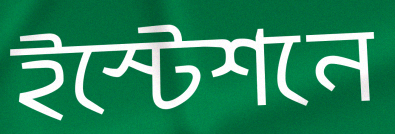
ইস্টেশনে